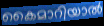
കൈമാറിയാൽ